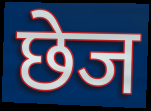
छेज